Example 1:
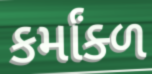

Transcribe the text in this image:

કર્માંક્ળ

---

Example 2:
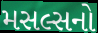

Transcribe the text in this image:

મસલ્સનો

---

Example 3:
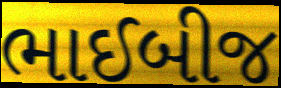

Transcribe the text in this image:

ભાઈબીજ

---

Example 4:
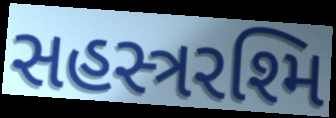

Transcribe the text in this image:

સહસ્ત્રરશ્મિ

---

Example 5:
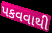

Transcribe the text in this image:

પકવવાથી